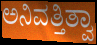
ಅನಿವತ್ತಿತ್ವಾ